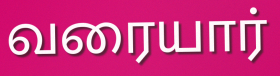
வரையார்